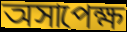
অসাপেক্ষ